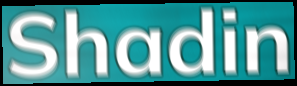
Shadin